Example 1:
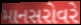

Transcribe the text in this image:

માનસરોવરે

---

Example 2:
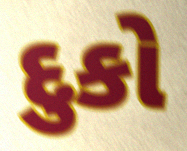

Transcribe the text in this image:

દુકો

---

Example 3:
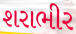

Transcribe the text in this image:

શરાભીર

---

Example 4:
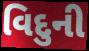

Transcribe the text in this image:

વિદુની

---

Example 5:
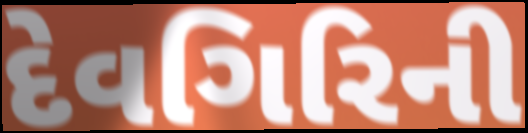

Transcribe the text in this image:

દેવગિરિની